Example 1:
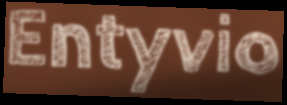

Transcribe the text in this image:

Entyvio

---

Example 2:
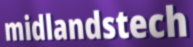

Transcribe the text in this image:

midlandstech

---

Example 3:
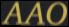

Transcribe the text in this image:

AAO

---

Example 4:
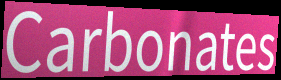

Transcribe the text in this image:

Carbonates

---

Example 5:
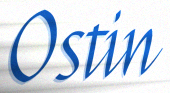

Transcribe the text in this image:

Ostin